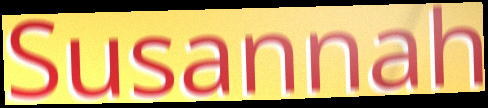
Susannah